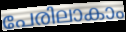
പേരിലാകാം